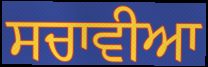
ਸਚਾਵੀਆ